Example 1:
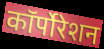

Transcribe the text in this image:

कॉर्पोरेशन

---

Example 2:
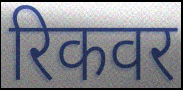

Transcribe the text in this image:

रिकवर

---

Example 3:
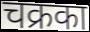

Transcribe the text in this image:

चक्रका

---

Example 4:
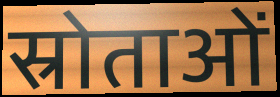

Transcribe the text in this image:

स्रोताओं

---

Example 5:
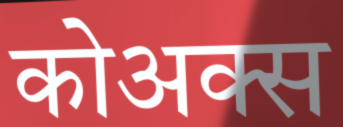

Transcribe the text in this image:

कोअक्स